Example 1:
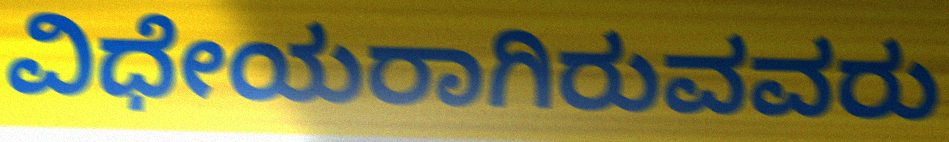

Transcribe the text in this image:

ವಿಧೇಯರಾಗಿರುವವರು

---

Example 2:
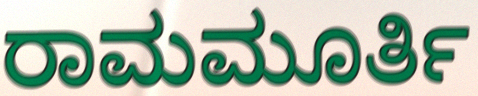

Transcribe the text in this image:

ರಾಮಮೂರ್ತಿ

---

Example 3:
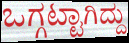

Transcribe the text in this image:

ಒಗ್ಗಟ್ಟಾಗಿದ್ದು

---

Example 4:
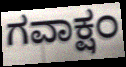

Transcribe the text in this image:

ಗವಾಕ್ಷಂ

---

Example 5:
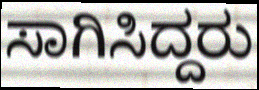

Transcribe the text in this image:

ಸಾಗಿಸಿದ್ದರು